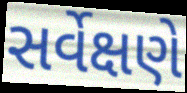
સર્વેક્ષણે